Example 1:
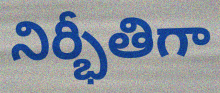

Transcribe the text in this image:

నిర్భీతిగా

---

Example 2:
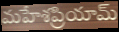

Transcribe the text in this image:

మహేశప్రియామ్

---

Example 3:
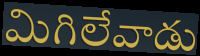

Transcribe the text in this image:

మిగిలేవాడు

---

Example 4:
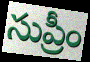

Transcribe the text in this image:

సుప్రీం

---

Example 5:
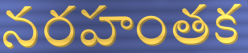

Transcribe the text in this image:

నరహంతక